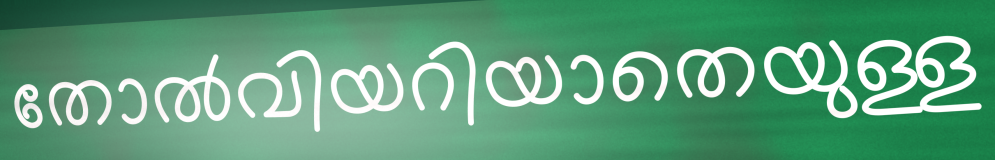
തോൽവിയറിയാതെയുള്ള